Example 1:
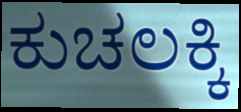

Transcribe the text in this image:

ಕುಚಲಕ್ಕಿ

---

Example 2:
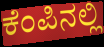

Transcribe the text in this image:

ಕೆಂಪಿನಲ್ಲಿ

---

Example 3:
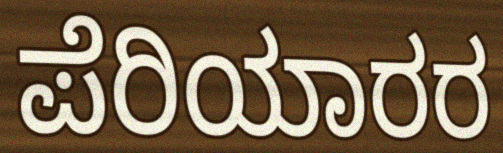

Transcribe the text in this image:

ಪೆರಿಯಾರರ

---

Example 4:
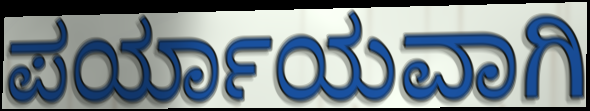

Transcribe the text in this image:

ಪರ್ಯಾಯವಾಗಿ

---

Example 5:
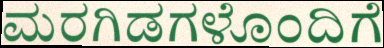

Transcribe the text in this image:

ಮರಗಿಡಗಳೊಂದಿಗೆ